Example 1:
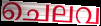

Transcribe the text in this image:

ചെലവ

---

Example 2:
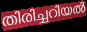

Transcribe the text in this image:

തിരിച്ചറിയൽ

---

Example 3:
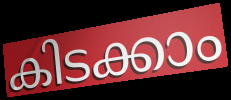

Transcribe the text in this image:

കിടക്കാം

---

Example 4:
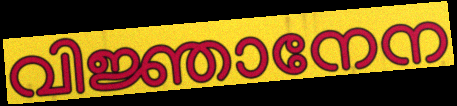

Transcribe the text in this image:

വിജ്ഞാനേന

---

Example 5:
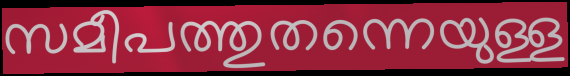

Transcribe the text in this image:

സമീപത്തുതന്നെയുള്ള